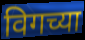
विगच्या